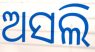
ଅସଲି